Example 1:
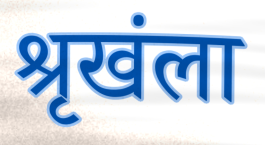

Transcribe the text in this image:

श्रृखंला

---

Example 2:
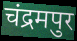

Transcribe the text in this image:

चंद्रमपुर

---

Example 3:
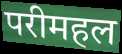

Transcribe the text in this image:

परीमहल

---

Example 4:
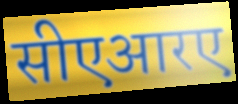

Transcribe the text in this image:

सीएआरए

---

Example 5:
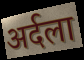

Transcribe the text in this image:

अर्दला